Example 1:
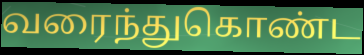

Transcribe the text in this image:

வரைந்துகொண்ட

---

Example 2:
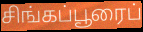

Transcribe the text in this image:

சிங்கப்பூரைப்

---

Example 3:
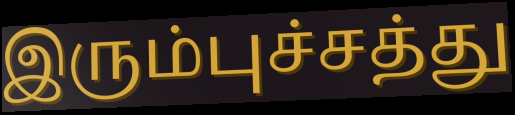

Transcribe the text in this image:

இரும்புச்சத்து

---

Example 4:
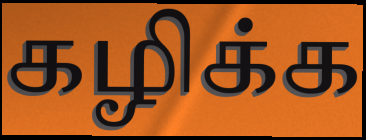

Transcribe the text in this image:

கழிக்க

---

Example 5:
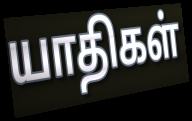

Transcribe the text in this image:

யாதிகள்